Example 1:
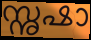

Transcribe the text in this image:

സ്നുഷാ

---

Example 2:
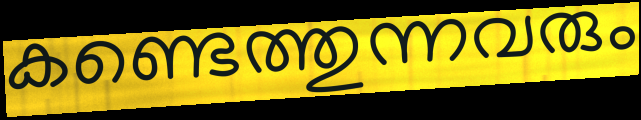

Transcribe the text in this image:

കണ്ടെത്തുന്നവരും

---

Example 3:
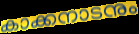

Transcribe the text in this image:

കാക്കനാടനും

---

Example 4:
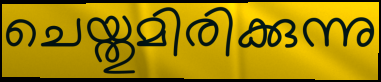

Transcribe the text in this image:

ചെയ്തുമിരിക്കുന്നു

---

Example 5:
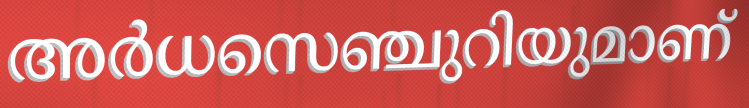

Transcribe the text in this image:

അർധസെഞ്ചുറിയുമാണ്